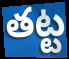
తట్ట